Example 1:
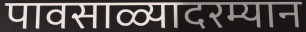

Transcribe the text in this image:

पावसाळ्यादरम्यान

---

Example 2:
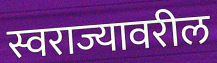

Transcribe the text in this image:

स्वराज्यावरील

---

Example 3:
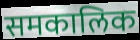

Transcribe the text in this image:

समकालिक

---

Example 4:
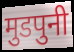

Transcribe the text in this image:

मुडपुनी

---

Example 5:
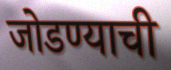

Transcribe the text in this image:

जोडण्याची